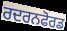
ਰਦਰਨਫੋਰਡ